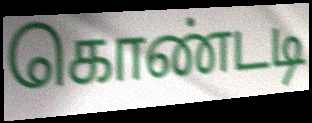
கொண்டடி